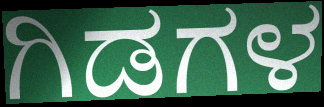
ಗಿಡಗಳ